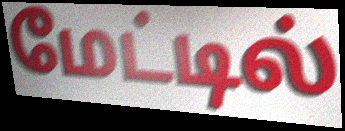
மேட்டில்